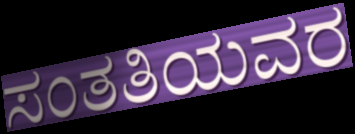
ಸಂತತಿಯವರ